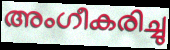
അംഗീകരിച്ചു